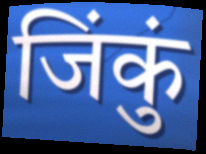
जिंकुं